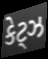
કેટ્ઝ